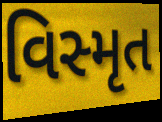
વિસ્મૃત